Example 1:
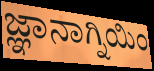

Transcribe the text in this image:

ಜ್ಞಾನಾಗ್ನಿಯಿಂ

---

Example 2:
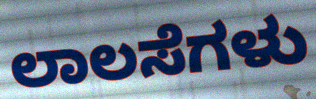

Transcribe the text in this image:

ಲಾಲಸೆಗಳು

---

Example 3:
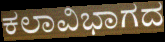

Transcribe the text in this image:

ಕಲಾವಿಭಾಗದ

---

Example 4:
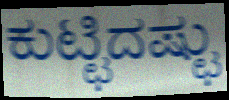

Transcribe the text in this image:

ಕುಟ್ಟಿದಷ್ಟು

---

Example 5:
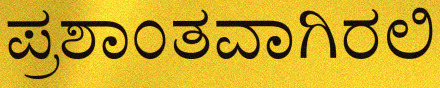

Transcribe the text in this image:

ಪ್ರಶಾಂತವಾಗಿರಲಿ